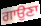
ਗਾਉਣਾ